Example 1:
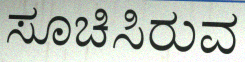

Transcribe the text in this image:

ಸೂಚಿಸಿರುವ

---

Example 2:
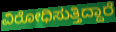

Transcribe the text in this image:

ವಿರೋಧಿಸುತ್ತಿದ್ದಾರೆ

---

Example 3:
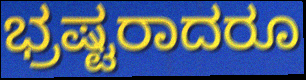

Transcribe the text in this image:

ಭ್ರಷ್ಟರಾದರೂ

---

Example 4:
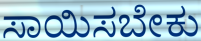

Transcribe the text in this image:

ಸಾಯಿಸಬೇಕು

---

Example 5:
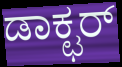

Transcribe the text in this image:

ಡಾಕ್ಟರ್